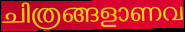
ചിത്രങ്ങളാണവ